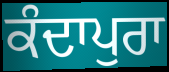
ਕੰਦਾਪੁਰਾ